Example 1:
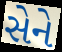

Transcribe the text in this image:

સેને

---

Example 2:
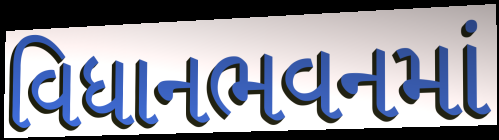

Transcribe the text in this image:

વિધાનભવનમાં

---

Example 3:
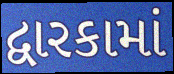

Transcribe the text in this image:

દ્વારકામાં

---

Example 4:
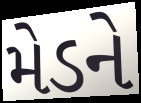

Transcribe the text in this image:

મેડને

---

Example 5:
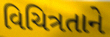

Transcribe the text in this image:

વિચિત્રતાને